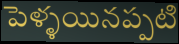
పెళ్ళయినప్పటి